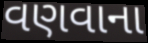
વણવાના